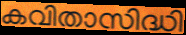
കവിതാസിദ്ധി